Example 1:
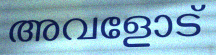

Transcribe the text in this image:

അവളോട്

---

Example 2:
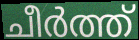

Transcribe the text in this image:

ചീർത്ത്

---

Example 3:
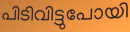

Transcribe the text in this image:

പിടിവിട്ടുപോയി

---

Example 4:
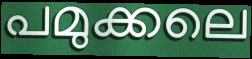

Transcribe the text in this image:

പമുക്കലെ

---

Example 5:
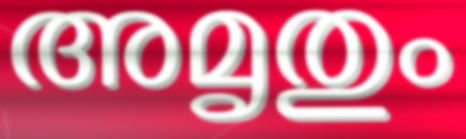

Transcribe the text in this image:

അമൃതും